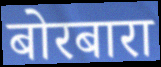
बोरबारा